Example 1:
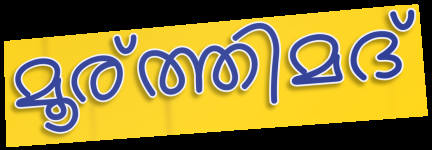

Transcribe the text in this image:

മൂര്ത്തിമദ്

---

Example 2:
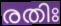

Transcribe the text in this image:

രതിഃ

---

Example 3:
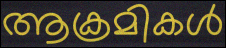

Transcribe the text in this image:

ആക്രമികൾ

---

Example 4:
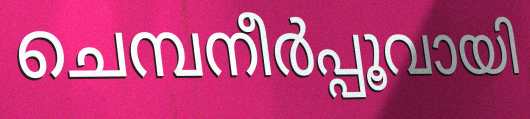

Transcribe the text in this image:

ചെമ്പനീർപ്പൂവായി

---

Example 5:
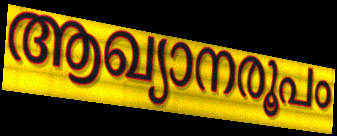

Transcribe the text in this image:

ആഖ്യാനരൂപം